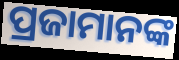
ପ୍ରଜାମାନଙ୍କ